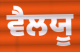
ਵੈਲਯੂ